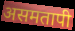
असमतापी